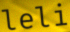
leli